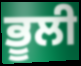
ਭੂਲੀ